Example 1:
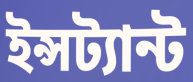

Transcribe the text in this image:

ইন্সট্যান্ট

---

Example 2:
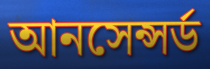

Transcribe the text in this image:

আনসেন্সর্ড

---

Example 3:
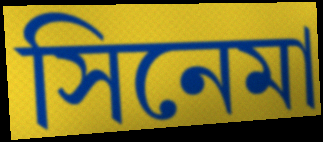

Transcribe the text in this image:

সিনেমা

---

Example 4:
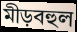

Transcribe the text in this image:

মীড়বহুল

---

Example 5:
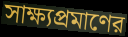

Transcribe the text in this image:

সাক্ষ্যপ্রমাণের